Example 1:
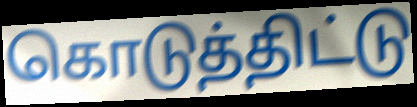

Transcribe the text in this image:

கொடுத்திட்டு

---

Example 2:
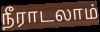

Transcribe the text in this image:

நீராடலாம்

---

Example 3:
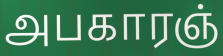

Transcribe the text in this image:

அபகாரஞ்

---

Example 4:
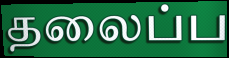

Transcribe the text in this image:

தலைப்ப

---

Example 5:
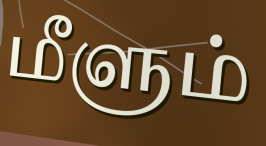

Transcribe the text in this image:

மீளும்